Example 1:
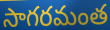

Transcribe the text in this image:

సాగరమంత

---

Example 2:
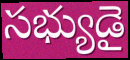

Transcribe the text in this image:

సభ్యుడై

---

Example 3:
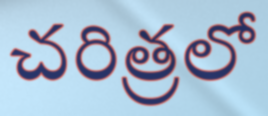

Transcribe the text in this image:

చరిత్రలో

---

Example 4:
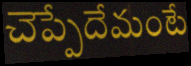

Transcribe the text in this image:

చెప్పేదేమంటే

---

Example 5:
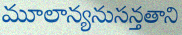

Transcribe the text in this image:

మూలాన్యనుసన్తతాని